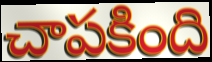
చాపకింది